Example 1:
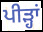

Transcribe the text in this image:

ਪੀੜ੍ਹਾਂ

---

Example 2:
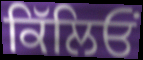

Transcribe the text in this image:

ਕਿੱਲਿਓਂ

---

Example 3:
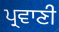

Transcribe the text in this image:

ਪ੍ਰਵਾਣੀ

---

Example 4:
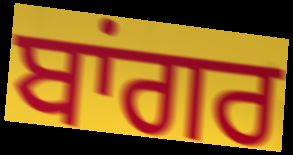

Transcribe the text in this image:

ਬਾਂਗਰ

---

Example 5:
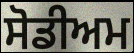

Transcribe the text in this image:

ਸੋਡੀਅਮ